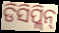
ଡିସିପ୍ଲିନ୍